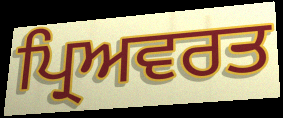
ਪ੍ਰਿਅਵਰਤ